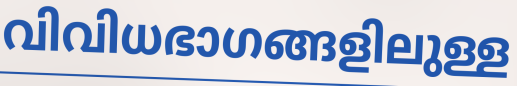
വിവിധഭാഗങ്ങളിലുള്ള